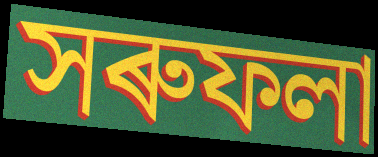
সৰুফলা